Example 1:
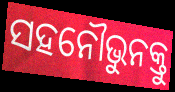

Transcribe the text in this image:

ସହନୌଭୁନକ୍ତୁ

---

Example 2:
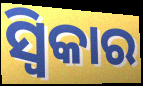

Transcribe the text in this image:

ସ୍ୱିକାର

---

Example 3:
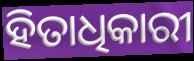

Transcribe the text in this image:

ହିତାଧିକାରୀ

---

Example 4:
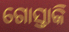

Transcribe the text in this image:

ଗୋସ୍ତାକି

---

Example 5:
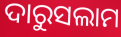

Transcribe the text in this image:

ଦାରୁସଲାମ